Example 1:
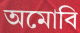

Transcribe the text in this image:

অমোবি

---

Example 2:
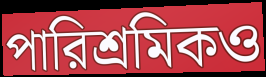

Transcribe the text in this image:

পারিশ্রমিকও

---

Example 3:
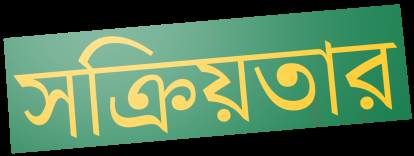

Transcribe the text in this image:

সক্রিয়তার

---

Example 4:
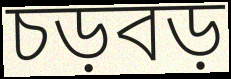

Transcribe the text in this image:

চড়বড়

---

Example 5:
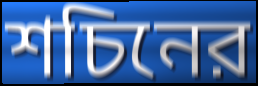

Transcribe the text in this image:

শচিনের